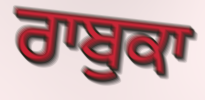
ਰਾਬੁਕਾ